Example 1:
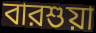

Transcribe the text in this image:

বারশুয়া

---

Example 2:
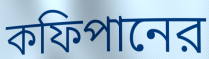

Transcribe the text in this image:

কফিপানের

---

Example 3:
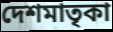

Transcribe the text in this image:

দেশমাতৃকা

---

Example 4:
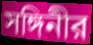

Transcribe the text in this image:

সঙ্গিনীর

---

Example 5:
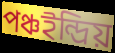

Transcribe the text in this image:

পঞ্চইন্দ্রিয়